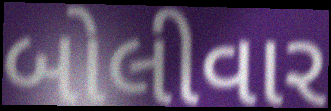
બોલીવાર